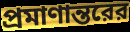
প্রমাণান্তরের